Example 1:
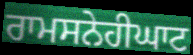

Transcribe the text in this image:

ਰਾਮਸਨੇਹੀਘਾਟ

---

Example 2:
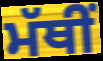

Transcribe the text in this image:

ਮੱਥੀਂ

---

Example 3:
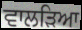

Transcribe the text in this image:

ਵਾਲੜਿਆ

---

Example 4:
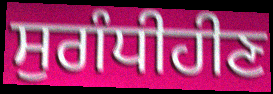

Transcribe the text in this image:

ਸੁਗੰਧੀਹੀਣ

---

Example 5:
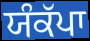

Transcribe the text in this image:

ਯੰਕੱਪਾ